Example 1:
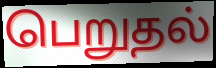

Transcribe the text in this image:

பெறுதல்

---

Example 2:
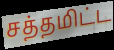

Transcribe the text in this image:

சத்தமிட்ட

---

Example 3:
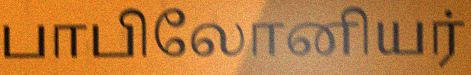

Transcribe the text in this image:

பாபிலோனியர்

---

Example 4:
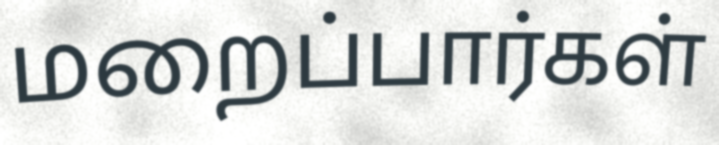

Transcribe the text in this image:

மறைப்பார்கள்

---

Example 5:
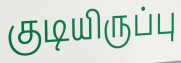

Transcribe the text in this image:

குடியிருப்பு